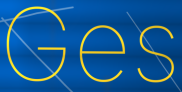
Ges